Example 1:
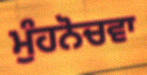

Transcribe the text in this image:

ਮੁੰਹਨੋਚਵਾ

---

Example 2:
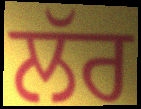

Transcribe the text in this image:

ਲੱਰ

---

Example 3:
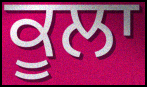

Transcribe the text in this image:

ਕੂਲਾ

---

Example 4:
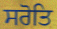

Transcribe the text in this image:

ਸਰੋਤਿ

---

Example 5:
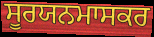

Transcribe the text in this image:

ਸੂਰਯਨਮਾਸਕਰ